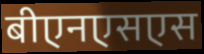
बीएनएसएस